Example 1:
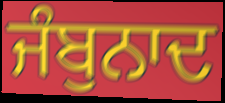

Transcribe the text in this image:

ਜੰਬੁਨਾਦ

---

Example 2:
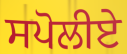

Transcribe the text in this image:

ਸਪੋਲੀਏ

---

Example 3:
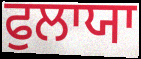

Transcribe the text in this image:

ਫੁਲਾਯਾ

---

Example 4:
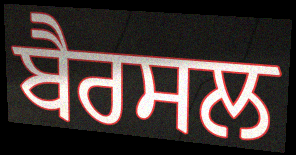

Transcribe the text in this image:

ਬੈਰਸਲ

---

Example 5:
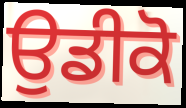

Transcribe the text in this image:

ਉਡੀਕੋ